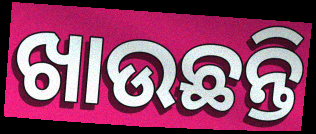
ଖାଉଛନ୍ତି